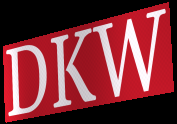
DKW